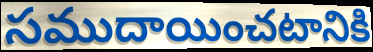
సముదాయించటానికి